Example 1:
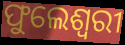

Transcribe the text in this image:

ଫୁଲେଶ୍ବରୀ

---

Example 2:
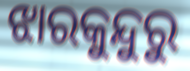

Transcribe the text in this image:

ଝାରକୁନ୍ଦୁରୁ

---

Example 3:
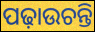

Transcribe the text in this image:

ପଢ଼ାଉଚନ୍ତି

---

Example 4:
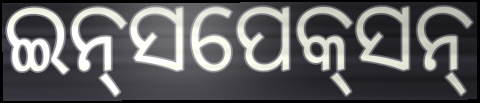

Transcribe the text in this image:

ଇନ୍‌ସପେକ୍‌ସନ୍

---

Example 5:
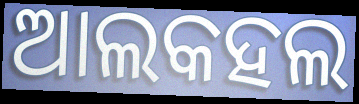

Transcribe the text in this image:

ଆଲକହଲ